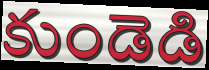
కుండెడి